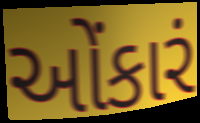
ઓંકારં